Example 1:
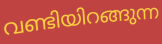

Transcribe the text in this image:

വണ്ടിയിറങ്ങുന്ന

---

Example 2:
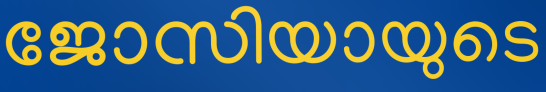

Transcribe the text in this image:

ജോസിയായുടെ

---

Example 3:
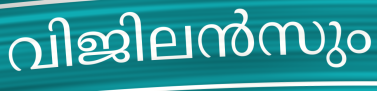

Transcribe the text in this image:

വിജിലൻസും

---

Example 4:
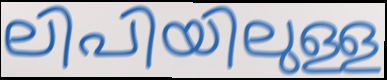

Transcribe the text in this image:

ലിപിയിലുള്ള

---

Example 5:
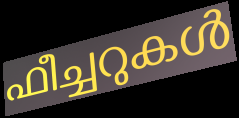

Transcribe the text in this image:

ഫീച്ചറുകൾ